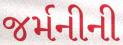
જર્મનીની